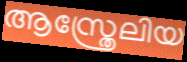
ആസ്ത്രേലിയ